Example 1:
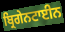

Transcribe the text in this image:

ਬ੍ਰਿਗੇਨਟਾਈਨ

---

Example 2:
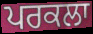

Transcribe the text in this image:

ਪਰਕਲਾ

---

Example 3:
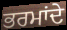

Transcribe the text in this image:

ਭਰਮਾਂਦੇ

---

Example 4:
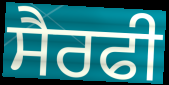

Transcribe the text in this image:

ਸੈਰਫੀ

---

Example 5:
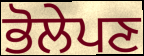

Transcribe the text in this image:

ਭੋਲੇਪਣ